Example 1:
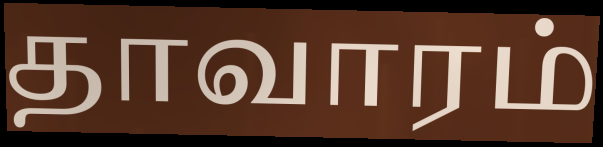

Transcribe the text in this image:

தாவாரம்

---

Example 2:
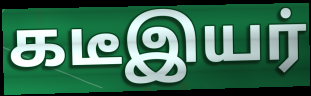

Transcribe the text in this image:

கடீஇயர்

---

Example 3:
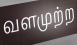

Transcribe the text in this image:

வளமுற்ற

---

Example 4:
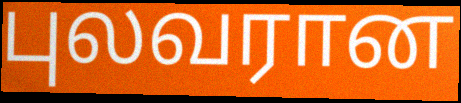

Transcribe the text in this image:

புலவரான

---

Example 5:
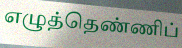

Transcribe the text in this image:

எழுத்தெண்ணிப்